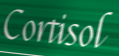
Cortisol